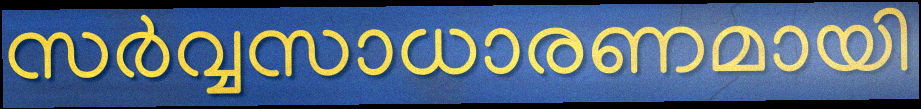
സർവ്വസാധാരണമായി